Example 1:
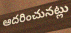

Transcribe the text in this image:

ఆదరించునట్లు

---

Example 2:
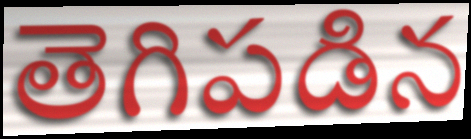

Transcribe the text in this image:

తెగిపడిన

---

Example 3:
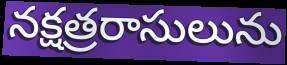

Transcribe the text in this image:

నక్షత్రరాసులును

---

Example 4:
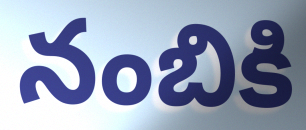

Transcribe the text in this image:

నంబికి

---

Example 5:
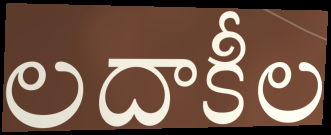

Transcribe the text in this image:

లదాకీల